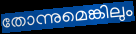
തോന്നുമെങ്കിലും